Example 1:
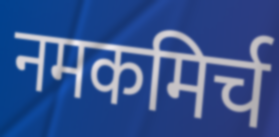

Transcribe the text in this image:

नमकमिर्च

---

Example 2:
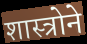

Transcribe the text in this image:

शास्त्रोने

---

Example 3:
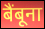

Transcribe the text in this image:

बैंबूना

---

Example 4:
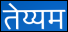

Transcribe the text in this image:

तेय्यम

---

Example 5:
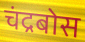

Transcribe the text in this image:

चंद्रबोस